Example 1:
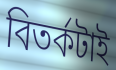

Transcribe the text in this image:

বিতর্কটাই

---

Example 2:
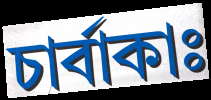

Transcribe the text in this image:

চার্বাকাঃ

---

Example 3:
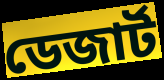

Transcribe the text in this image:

ডেজার্ট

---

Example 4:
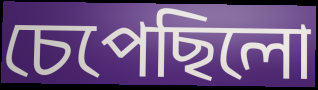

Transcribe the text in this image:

চেপেছিলো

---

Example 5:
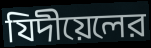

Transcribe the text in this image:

যিদীয়েলের